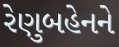
રેણુબહેનને